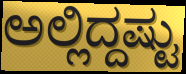
ಅಲ್ಲಿದ್ದಷ್ಟು